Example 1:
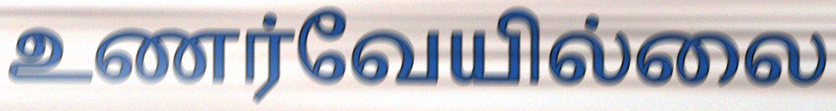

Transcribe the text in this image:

உணர்வேயில்லை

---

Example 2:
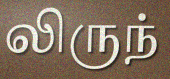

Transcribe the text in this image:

லிருந்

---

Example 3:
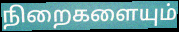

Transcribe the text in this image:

நிறைகளையும்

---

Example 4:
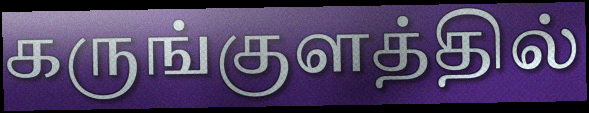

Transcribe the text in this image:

கருங்குளத்தில்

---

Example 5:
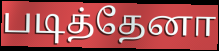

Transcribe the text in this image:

படித்தேனா